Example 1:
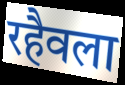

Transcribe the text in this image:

रहैवला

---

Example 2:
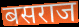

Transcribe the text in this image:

बसराज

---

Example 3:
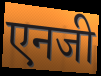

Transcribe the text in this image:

एनजी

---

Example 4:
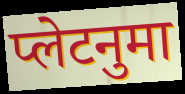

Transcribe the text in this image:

प्लेटनुमा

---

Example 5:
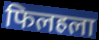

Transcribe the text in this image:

फिलहला